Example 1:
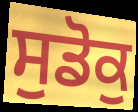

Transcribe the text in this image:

ਸੁਡੋਕੁ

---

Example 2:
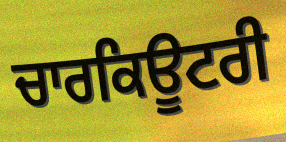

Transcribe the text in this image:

ਚਾਰਕਿਊਟਰੀ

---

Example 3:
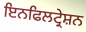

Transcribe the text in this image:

ਇਨਫਿਲਟ੍ਰੇਸ਼ਨ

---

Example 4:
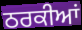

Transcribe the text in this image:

ਠਰਕੀਆਂ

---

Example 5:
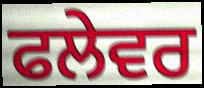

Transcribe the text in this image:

ਫਲੇਵਰ